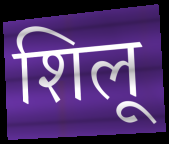
शिलू